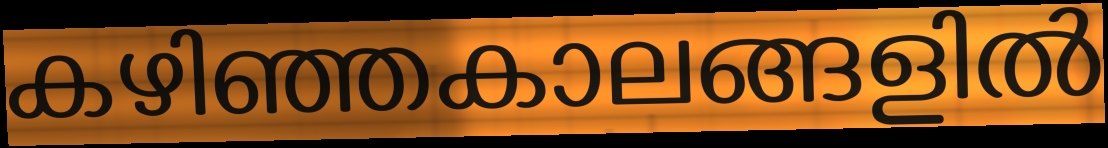
കഴിഞ്ഞകാലങ്ങളിൽ